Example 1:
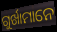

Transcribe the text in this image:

ଗୁର୍ଖାମାନେ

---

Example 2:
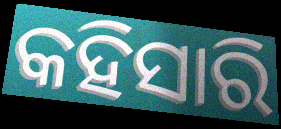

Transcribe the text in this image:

କହିସାରି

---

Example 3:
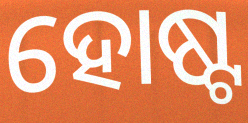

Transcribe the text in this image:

ହୋଷ୍ଟ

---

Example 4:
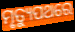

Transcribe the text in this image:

ମୃତ୍ୟୁପଥରେ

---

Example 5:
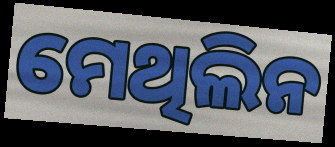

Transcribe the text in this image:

ମେଥିଲିନ